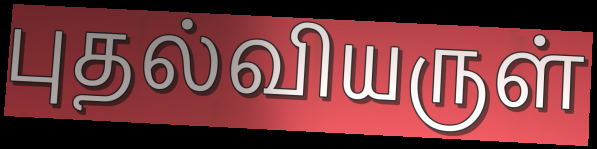
புதல்வியருள்